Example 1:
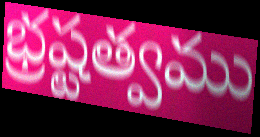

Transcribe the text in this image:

భ్రష్టత్వము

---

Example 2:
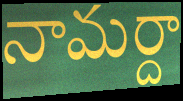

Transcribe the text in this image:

నామర్దా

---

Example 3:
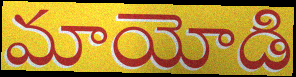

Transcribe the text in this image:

మాయోడి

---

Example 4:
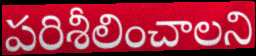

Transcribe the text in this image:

పరిశీలించాలని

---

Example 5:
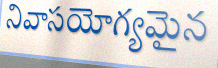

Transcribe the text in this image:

నివాసయోగ్యమైన